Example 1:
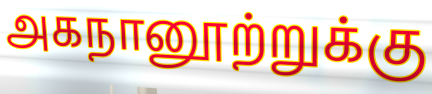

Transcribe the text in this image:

அகநானூற்றுக்கு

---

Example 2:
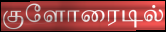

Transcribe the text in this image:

குளோரைடில்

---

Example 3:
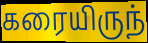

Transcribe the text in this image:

கரையிருந்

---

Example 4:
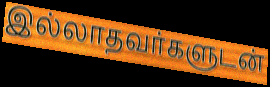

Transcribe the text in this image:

இல்லாதவர்களுடன்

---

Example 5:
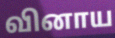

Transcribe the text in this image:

வினாய